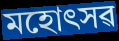
মহোৎসৱ